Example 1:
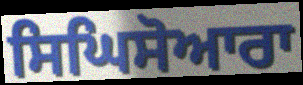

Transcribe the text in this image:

ਸਿਘਿਸੋਆਰਾ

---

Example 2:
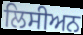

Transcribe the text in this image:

ਲਿਸੀਅਨ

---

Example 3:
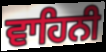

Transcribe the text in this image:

ਵਾਹਿਨੀ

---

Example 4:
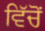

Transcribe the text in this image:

ਵਿੱਚੋੰ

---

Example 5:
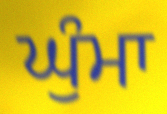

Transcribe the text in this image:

ਘੁੰਮਾ